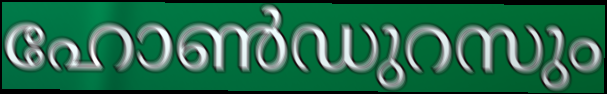
ഹോൺഡുറസും